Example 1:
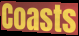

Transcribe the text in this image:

Coasts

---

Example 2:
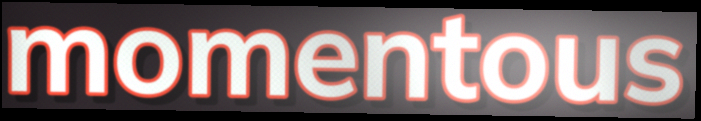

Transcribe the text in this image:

momentous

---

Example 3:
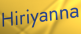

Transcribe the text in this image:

Hiriyanna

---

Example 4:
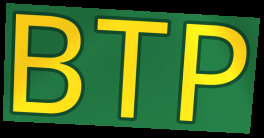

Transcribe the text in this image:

BTP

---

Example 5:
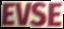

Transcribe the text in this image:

EVSE